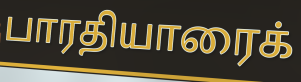
பாரதியாரைக்